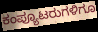
ಕಂಪ್ಯೂಟರುಗಳಿಗೂ